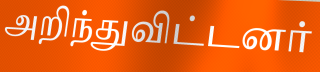
அறிந்துவிட்டனர்